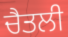
ਚੈਤਲੀ